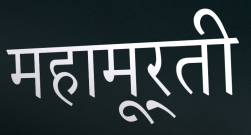
महामूर्ती